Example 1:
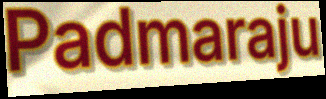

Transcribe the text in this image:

Padmaraju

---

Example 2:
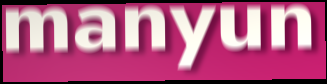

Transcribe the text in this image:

manyun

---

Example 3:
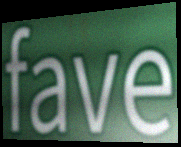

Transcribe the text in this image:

fave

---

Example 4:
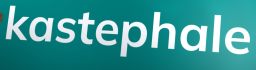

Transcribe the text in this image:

kastephale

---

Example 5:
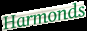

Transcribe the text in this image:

Harmonds